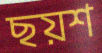
ছয়শ